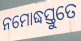
ନମୋଦ୍ଧସ୍ତୁତେ